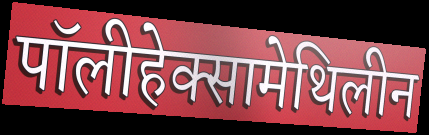
पॉलीहेक्सामेथिलीन